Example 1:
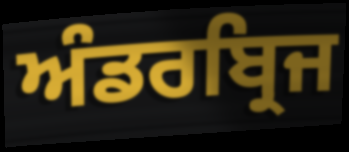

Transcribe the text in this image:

ਅੰਡਰਬ੍ਰਿਜ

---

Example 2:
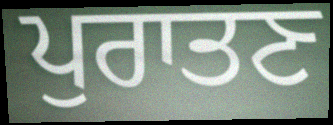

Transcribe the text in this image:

ਪੁਰਾਤਣ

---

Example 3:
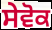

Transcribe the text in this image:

ਸੇਵੋਕ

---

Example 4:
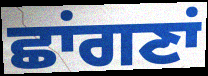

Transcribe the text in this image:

ਛਾਂਗਣਾਂ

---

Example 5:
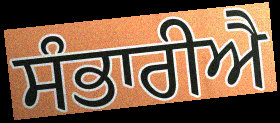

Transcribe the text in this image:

ਸੰਭਾਰੀਐ